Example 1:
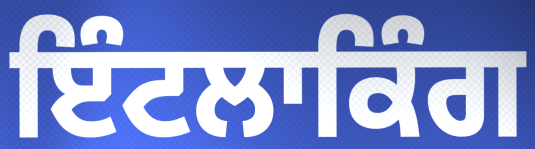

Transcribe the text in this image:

ਇੰਟਲਾਕਿੰਗ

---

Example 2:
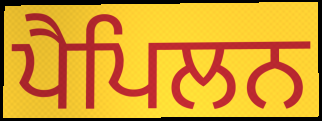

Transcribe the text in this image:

ਪੈਪਿਲਨ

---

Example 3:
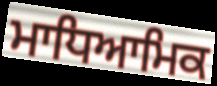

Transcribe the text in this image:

ਮਾਧਿਆਮਿਕ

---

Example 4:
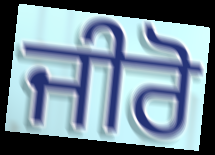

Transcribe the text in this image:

ਜੀਰੋ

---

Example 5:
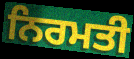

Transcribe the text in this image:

ਨਿਰਮਤੀ